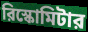
রিস্কোমিটার